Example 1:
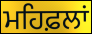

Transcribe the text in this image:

ਮਹਿਫ਼ਲਾਂ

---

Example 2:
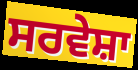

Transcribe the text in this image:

ਸਰਵੇਸ਼ਾ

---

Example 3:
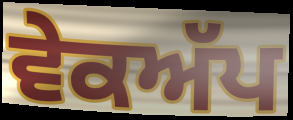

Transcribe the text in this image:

ਵੇਕਅੱਪ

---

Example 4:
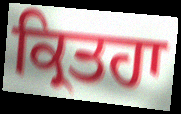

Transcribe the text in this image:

ਕ੍ਰਿਤਹਾ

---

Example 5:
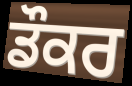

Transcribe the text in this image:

ਡੌਕਰ